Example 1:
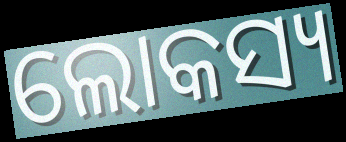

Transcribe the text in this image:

ଲୋକସ୍ୟ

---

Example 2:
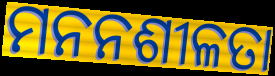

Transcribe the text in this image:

ମନନଶୀଳତା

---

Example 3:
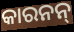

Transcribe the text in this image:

କାରନନ୍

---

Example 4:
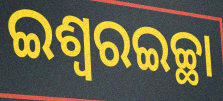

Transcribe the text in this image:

ଇଶ୍ୱରଇଚ୍ଛା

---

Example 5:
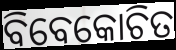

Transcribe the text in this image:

ବିବେକୋଚିତ